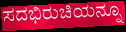
ಸದಭಿರುಚಿಯನ್ನೂ